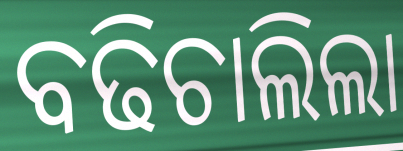
ବଢିଚାଲିଲା